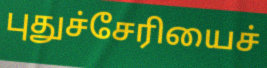
புதுச்சேரியைச்